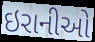
ઇરાનીઓ